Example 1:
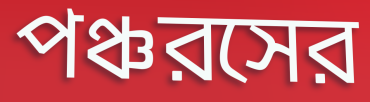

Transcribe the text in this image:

পঞ্চরসের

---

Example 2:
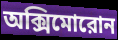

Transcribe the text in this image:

অক্সিমোরোন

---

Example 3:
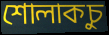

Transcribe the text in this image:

শোলাকচু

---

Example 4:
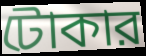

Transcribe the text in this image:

টোকার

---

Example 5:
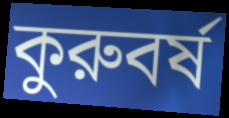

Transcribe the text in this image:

কুরুবর্ষ